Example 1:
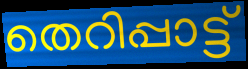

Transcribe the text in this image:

തെറിപ്പാട്ട്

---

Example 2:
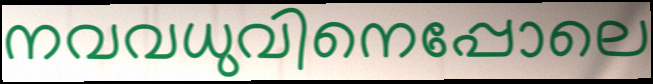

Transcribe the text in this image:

നവവധുവിനെപ്പോലെ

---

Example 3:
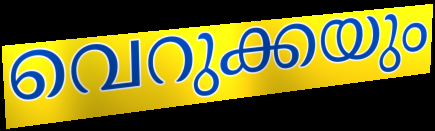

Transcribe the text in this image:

വെറുക്കയും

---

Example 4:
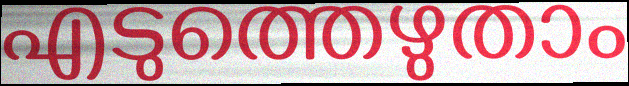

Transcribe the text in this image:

എടുത്തെഴുതാം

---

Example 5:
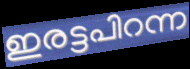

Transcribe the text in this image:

ഇരട്ടപിറന്ന